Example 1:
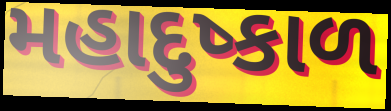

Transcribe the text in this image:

મહાદુષ્કાળ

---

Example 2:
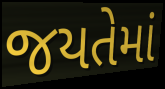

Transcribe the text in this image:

જયતેમાં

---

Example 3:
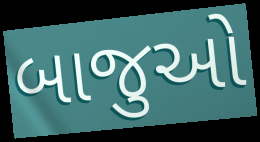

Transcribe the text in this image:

બાજુઓ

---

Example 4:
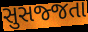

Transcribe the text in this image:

સુસજ્જતા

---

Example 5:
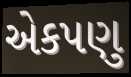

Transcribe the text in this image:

એકપણુ